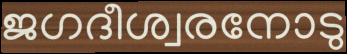
ജഗദീശ്വരനോടു